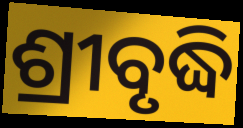
ଶ୍ରୀବୃଦ୍ଧି